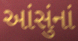
આંસુંનાં